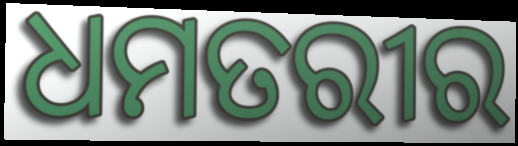
ଧମତରୀର